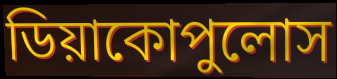
ডিয়াকোপুলোস